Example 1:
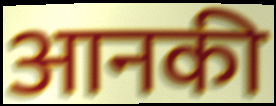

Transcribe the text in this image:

आनकी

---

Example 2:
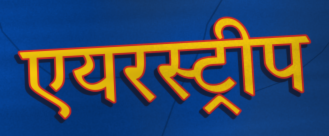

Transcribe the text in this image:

एयरस्ट्रीप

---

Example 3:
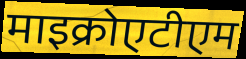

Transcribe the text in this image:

माइक्रोएटीएम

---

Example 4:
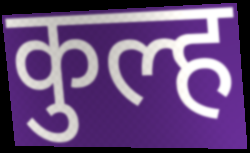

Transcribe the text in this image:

कुल्ह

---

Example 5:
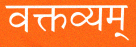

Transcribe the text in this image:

वक्तव्यम्